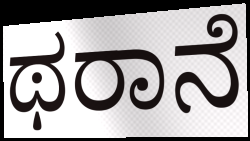
ಥರಾನೆ